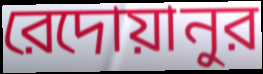
রেদোয়ানুর